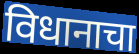
विधानाचा